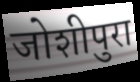
जोशीपुरा